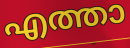
എത്താ